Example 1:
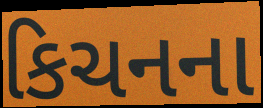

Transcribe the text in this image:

કિચનના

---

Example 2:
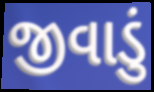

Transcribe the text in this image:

જીવાડું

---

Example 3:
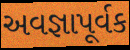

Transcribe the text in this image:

અવજ્ઞાપૂર્વક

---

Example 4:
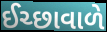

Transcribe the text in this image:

ઈચ્છાવાળે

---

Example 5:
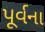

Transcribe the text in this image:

પૂર્વના